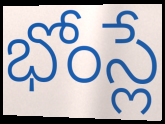
భోంస్లే